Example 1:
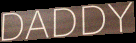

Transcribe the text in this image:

DADDY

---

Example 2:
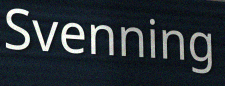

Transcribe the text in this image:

Svenning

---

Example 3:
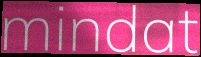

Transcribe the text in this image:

mindat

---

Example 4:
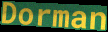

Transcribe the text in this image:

Dorman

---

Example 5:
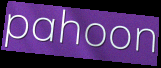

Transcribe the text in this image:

pahoon